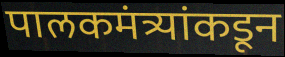
पालकमंत्र्यांकडून